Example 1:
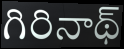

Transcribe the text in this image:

గిరినాథ్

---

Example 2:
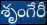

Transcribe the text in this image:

శృంగేరీ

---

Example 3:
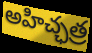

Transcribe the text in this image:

అహిచ్ఛత్ర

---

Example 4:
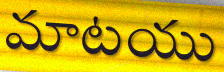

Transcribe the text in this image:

మాటయు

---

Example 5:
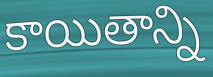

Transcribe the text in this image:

కాయితాన్ని